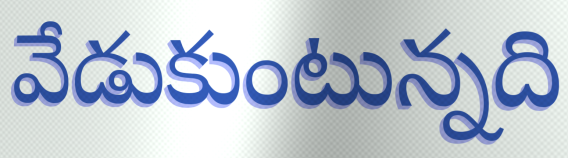
వేడుకుంటున్నది